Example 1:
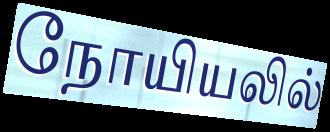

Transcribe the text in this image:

நோயியலில்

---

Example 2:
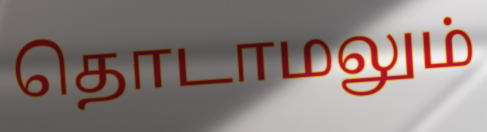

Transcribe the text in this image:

தொடாமலும்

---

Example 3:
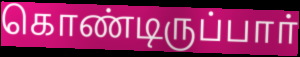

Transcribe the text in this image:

கொண்டிருப்பார்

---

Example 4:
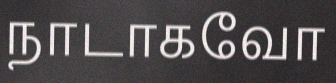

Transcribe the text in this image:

நாடாகவோ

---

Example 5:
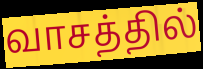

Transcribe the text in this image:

வாசத்தில்